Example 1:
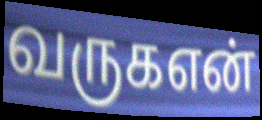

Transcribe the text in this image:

வருகஎன்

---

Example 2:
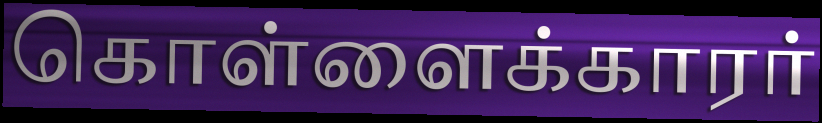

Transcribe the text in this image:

கொள்ளைக்காரர்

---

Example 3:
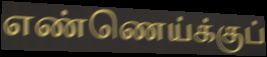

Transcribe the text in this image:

எண்ணெய்க்குப்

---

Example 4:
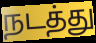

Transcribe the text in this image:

நடத்து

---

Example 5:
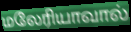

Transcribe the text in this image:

மலேரியாவால்